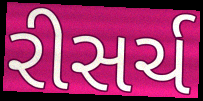
રીસર્ચ